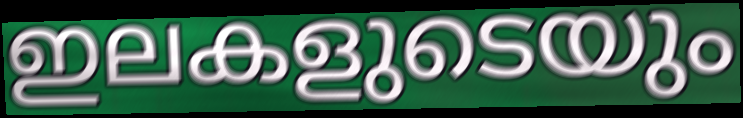
ഇലകളുടെയും